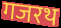
गजरथ